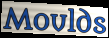
Moulds